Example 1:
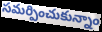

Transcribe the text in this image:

సమర్పించుకున్నాం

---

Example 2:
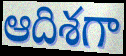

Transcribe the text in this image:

ఆదిశగా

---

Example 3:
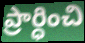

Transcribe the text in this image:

ప్రార్ధించి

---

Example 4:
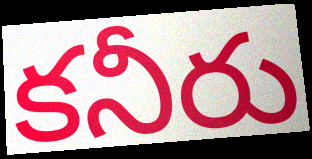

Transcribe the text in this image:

కనీరు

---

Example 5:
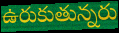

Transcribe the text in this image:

ఉరుకుతున్నరు